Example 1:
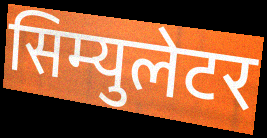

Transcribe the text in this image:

सिम्युलेटर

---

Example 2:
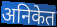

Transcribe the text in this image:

अनिकेत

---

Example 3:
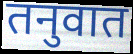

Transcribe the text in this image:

तनुवात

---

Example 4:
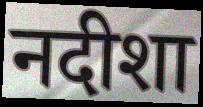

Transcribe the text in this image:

नदीशा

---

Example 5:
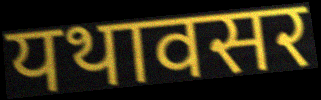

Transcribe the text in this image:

यथावसर